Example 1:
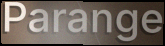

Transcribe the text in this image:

Parange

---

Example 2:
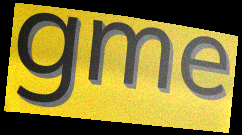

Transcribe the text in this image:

gme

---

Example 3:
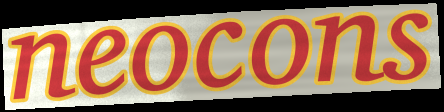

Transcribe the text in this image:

neocons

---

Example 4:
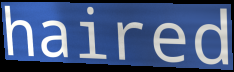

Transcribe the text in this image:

haired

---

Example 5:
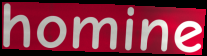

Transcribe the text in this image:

homine